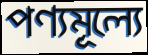
পণ্যমূল্যে